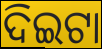
ଦିଇଟା